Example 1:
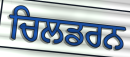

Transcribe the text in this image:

ਚਿਲਡਰਨ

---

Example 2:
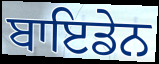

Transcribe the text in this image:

ਬਾਇਡੇਨ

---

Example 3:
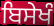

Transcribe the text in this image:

ਬਿਸੇਖੰ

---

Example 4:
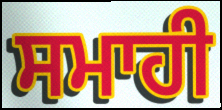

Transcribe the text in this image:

ਸਮਾਹੀ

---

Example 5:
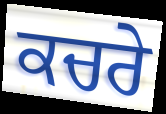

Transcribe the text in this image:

ਕਚਰੇ